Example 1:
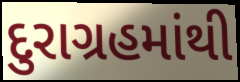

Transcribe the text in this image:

દુરાગ્રહમાંથી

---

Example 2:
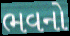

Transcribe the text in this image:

ભવનો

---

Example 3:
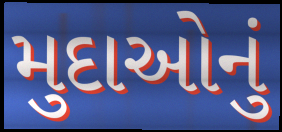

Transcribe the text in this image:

મુદાઓનું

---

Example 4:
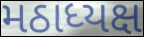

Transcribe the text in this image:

મઠાધ્યક્ષ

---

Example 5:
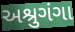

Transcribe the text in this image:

અશ્રુગંગા